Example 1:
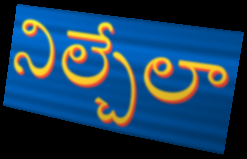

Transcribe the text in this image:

నిల్చేలా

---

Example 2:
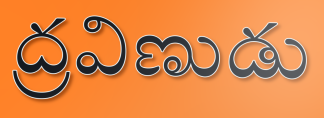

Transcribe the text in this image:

ద్రవిణుడు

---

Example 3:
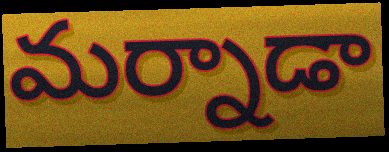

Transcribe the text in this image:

మర్నాడా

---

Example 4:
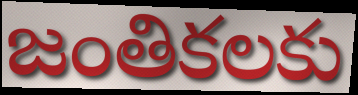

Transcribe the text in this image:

జంతికలకు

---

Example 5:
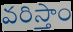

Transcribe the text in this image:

వరిస్తాం